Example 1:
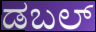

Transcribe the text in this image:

ಡಬಲ್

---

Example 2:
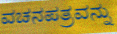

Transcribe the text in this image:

ವಚನಪತ್ರವನ್ನು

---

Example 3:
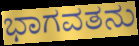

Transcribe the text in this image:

ಭಾಗವತನು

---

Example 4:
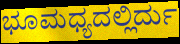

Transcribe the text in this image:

ಭೂಮಧ್ಯದಲ್ಲಿರ್ದು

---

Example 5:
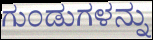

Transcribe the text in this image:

ಗುಂಡುಗಳನ್ನು